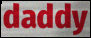
daddy